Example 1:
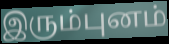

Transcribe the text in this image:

இரும்புனம்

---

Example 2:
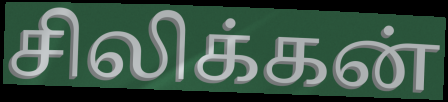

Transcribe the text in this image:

சிலிக்கன்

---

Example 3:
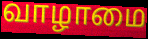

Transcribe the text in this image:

வாழாமை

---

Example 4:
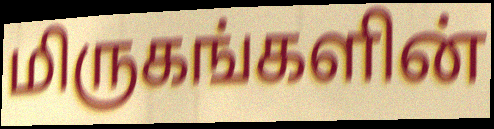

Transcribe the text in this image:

மிருகங்களின்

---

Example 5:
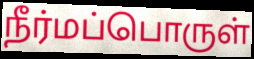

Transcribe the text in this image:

நீர்மப்பொருள்